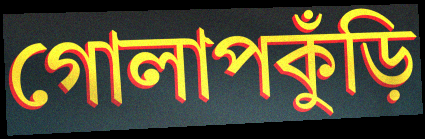
গোলাপকুঁড়ি